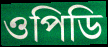
ওপিডি